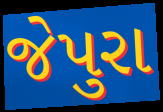
જેપુરા